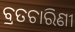
ବ୍ରତଚାରିଣୀ